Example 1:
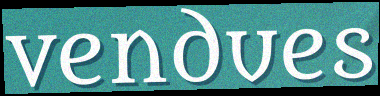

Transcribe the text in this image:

vendues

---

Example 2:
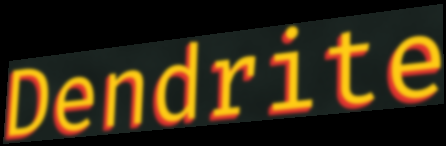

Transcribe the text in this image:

Dendrite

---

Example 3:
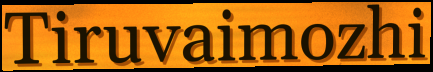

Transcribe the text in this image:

Tiruvaimozhi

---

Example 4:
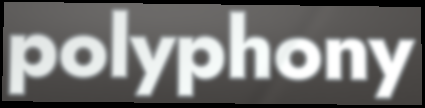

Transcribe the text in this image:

polyphony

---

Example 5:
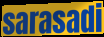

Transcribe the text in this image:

sarasadi